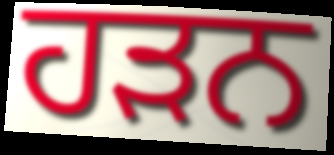
ਹੜਨ